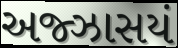
અજ્ઝાસયં